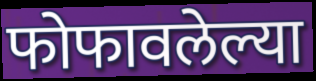
फोफावलेल्या